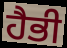
ਹੈਭੀ